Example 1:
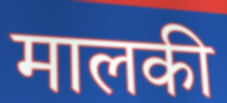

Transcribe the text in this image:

मालकी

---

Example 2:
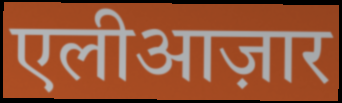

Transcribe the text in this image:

एलीआज़ार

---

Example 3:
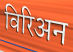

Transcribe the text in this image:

विरिअन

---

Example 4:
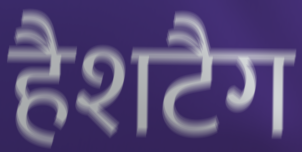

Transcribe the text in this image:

हैशटैग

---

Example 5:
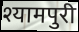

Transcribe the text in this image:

श्यामपुरी